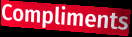
Compliments